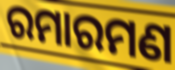
ରମାରମଣ